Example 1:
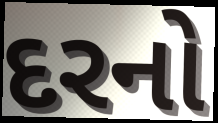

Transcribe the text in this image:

દરનો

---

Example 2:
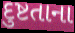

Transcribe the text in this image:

દુષ્ટતાના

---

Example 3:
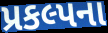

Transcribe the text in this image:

પ્રકલ્પના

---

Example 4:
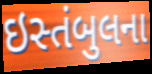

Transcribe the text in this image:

ઇસ્તંબુલના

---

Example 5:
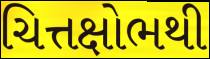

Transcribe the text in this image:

ચિત્તક્ષોભથી